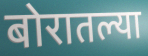
बोरातल्या